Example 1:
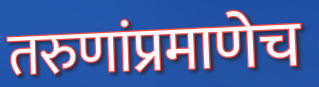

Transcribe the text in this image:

तरुणांप्रमाणेच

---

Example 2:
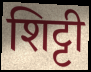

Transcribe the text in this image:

शिट्टी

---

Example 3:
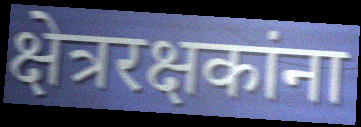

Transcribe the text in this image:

क्षेत्ररक्षकांना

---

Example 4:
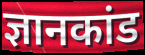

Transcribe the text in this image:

ज्ञानकांड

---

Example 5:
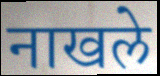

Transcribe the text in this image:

नाखले